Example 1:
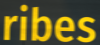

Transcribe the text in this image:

ribes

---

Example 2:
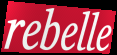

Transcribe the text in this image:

rebelle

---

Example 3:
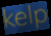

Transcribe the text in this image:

kelp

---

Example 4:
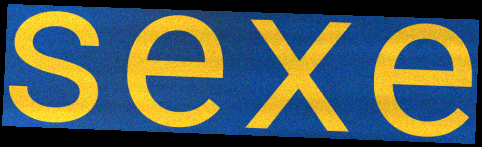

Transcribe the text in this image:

sexe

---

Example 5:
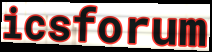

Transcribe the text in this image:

icsforum